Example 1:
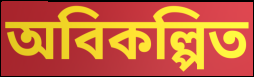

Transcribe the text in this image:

অবিকল্পিত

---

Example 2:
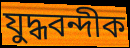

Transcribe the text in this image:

যুদ্ধবন্দীক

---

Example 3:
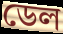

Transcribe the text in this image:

ডেল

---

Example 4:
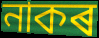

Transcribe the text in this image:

নাকৰ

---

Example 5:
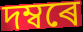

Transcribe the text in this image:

দম্বৰে